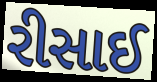
રીસાઈ